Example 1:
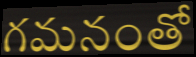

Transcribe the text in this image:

గమనంతో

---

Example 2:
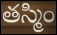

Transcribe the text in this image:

తస్మిం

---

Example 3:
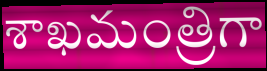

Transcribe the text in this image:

శాఖమంత్రిగా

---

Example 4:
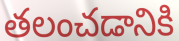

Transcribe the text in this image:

తలంచడానికి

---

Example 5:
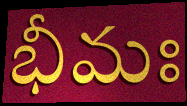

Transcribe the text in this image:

భీమః